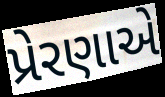
પ્રેરણાએ